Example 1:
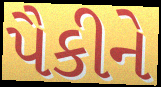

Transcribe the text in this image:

પૈકીને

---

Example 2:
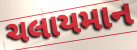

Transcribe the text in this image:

ચલાયમાન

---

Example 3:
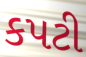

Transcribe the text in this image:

કપટી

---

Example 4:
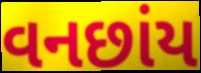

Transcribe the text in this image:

વનછાંય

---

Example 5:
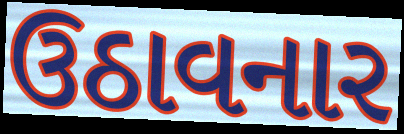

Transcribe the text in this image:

ઉઠાવનાર